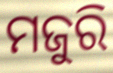
ମଜୁରି